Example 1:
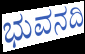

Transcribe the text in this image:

ಭುವನದಿ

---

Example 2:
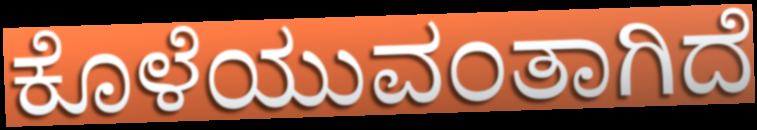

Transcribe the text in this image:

ಕೊಳೆಯುವಂತಾಗಿದೆ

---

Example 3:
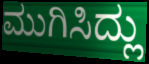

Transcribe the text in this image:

ಮುಗಿಸಿದ್ಲು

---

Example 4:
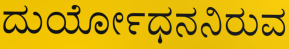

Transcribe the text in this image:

ದುರ್ಯೋಧನನಿರುವ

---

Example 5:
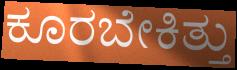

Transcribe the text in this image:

ಕೂರಬೇಕಿತ್ತು